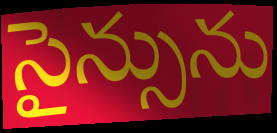
సైన్సును